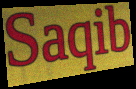
Saqib